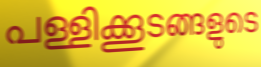
പള്ളിക്കൂടങ്ങളുടെ